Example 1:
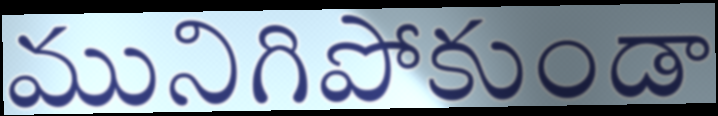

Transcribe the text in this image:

మునిగిపోకుండా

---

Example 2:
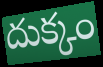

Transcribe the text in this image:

దుక్కం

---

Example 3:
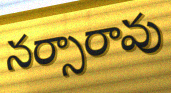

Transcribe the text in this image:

నర్సారావు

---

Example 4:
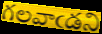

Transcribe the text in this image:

గలవాఁడని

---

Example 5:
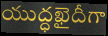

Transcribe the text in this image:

యుద్ధఖైదీగా